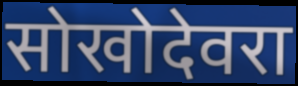
सोखोदेवरा